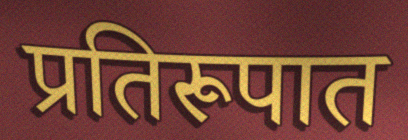
प्रतिरूपात